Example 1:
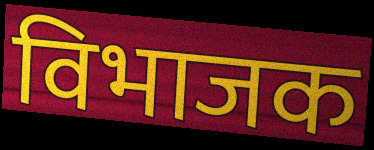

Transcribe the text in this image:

विभाजक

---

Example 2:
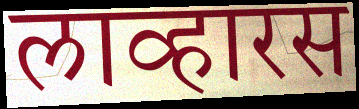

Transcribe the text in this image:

लाव्हारस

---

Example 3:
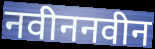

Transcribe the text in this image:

नवीननवीन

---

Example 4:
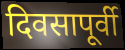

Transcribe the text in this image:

दिवसापूर्वी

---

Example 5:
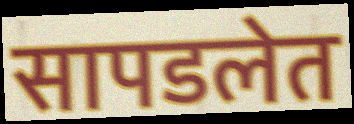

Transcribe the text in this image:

सापडलेत